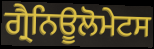
ਗ੍ਰੈਨਿਊਲੋਮੇਟਸ